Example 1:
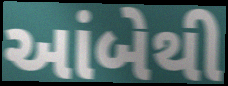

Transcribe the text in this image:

આંબેથી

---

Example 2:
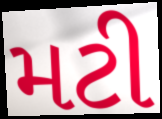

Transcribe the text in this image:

મટી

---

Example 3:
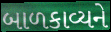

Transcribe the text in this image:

બાળકાવ્યને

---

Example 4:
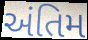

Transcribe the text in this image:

અંતિમ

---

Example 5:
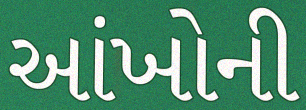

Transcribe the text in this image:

આંખોની